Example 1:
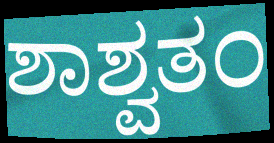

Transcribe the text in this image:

ಶಾಶ್ವತಂ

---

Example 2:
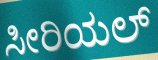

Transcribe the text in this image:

ಸೀರಿಯಲ್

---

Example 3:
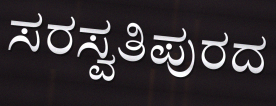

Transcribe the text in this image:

ಸರಸ್ವತಿಪುರದ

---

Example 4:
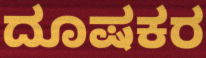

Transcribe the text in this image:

ದೂಷಕರ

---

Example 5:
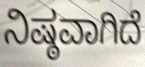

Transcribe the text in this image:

ನಿಷ್ಠವಾಗಿದೆ